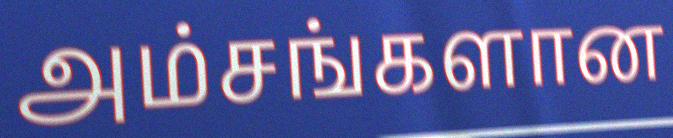
அம்சங்களான